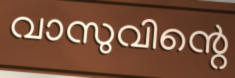
വാസുവിന്റെ